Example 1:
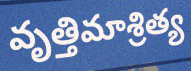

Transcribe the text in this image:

వృత్తిమాశ్రిత్య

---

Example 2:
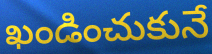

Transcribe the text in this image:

ఖండించుకునే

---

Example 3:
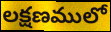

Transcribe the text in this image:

లక్షణములో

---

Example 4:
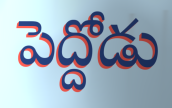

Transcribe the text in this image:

పెద్దోడు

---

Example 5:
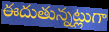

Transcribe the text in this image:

ఈదుతున్నట్లుగా